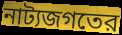
নাট্যজগতের